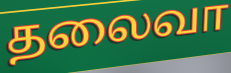
தலைவா